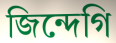
জিন্দেগি